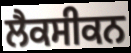
ਲੈਕਸੀਕਨ